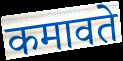
कमावते